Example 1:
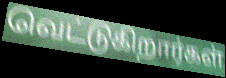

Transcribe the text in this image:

வெட்டுகிறார்கள்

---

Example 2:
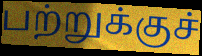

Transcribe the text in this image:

பற்றுக்குச்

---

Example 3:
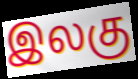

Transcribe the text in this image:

இலகு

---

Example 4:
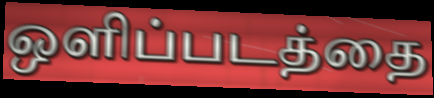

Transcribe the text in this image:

ஒளிப்படத்தை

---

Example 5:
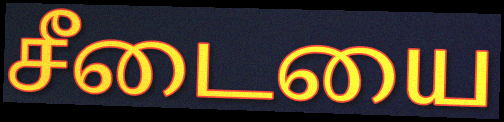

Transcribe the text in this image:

சீடையை